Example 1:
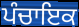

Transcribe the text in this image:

ਪੰਚਾਇਕ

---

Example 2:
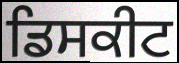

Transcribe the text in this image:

ਡਿਸਕੀਟ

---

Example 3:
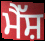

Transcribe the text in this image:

ਮੈੱਸ਼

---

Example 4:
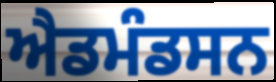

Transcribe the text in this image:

ਐਡਮੰਡਸਨ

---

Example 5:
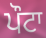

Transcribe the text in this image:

ਪੌਟਾ